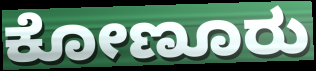
ಕೋಣೂರು